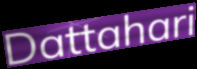
Dattahari